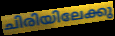
ചിരിയിലേക്കു